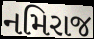
નમિરાજ